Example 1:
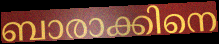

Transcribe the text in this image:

ബാരാക്കിനെ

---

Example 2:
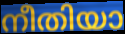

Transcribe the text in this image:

നീതിയാ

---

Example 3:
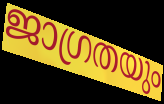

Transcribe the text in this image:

ജാഗ്രതയും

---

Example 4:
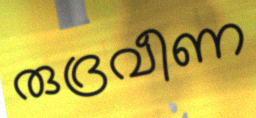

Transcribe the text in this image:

രുദ്രവീണ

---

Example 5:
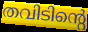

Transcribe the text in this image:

തവിടിന്റെ